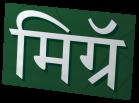
मिग्रॅ